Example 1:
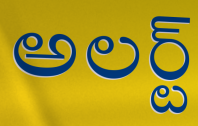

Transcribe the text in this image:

అలర్ట్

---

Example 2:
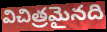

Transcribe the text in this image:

విచిత్రమైనది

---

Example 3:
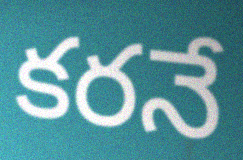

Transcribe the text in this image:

కరనే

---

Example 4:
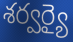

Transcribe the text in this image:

శర్వర్యై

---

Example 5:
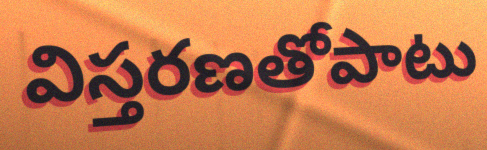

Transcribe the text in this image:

విస్తరణతోపాటు